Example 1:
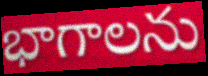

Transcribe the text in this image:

భాగాలను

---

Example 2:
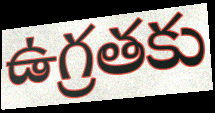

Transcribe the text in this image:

ఉగ్రతకు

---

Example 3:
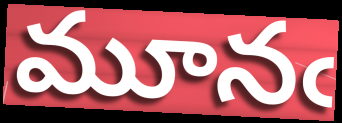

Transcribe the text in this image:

మూనఁ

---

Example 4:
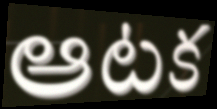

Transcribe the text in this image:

ఆటక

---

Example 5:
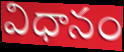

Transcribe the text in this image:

విధానం